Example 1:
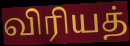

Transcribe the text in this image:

விரியத்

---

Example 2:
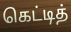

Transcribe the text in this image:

கெட்டித்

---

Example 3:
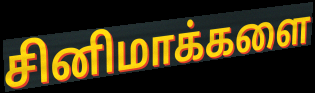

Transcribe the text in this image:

சினிமாக்களை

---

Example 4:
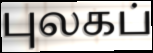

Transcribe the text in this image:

புலகப்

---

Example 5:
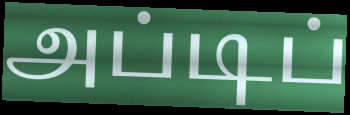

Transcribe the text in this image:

அப்டிப்